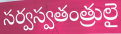
సర్వస్వతంత్రులై